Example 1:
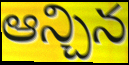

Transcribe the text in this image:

ఆన్చిన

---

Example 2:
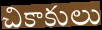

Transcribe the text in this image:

చికాకులు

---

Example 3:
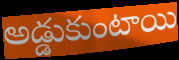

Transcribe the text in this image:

అడ్డుకుంటాయి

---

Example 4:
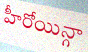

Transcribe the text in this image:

హీరోయిన్గా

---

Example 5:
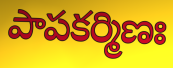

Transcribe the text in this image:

పాపకర్మిణః